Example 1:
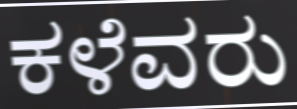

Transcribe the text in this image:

ಕಳೆವರು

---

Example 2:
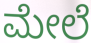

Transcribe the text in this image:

ಮೇಲೆ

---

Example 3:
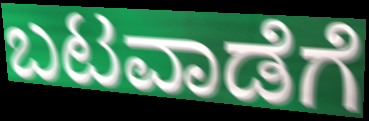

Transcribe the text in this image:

ಬಟವಾಡೆಗೆ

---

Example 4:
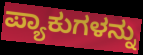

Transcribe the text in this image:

ಪ್ಯಾಕುಗಳನ್ನು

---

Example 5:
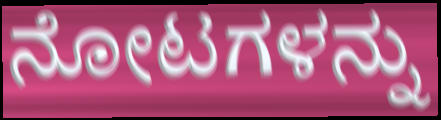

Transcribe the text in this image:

ನೋಟಗಳನ್ನು